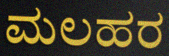
ಮಲಹರ